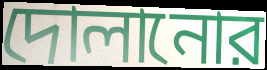
দোলানোর